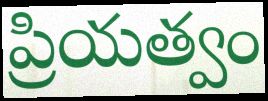
ప్రియత్వం